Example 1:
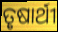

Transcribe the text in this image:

ତୃଷାର୍ଥୀ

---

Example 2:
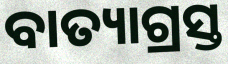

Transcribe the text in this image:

ବାତ୍ୟାଗ୍ରସ୍ତ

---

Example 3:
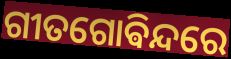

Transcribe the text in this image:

ଗୀତଗୋଵିନ୍ଦରେ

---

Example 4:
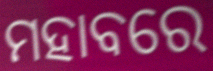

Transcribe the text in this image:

ମହାବରେ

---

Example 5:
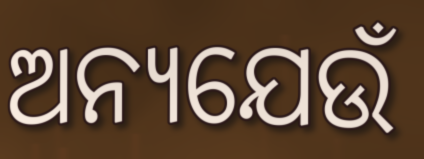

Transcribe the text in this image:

ଅନ୍ୟଯେଉଁ